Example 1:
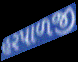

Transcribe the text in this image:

હરપાળજી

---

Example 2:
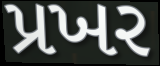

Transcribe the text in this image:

પ્રખર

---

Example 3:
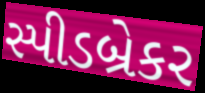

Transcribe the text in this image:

સ્પીડબ્રેકર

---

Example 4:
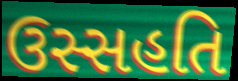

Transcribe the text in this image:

ઉસ્સહતિ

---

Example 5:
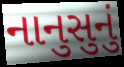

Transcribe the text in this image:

નાનુસુનું